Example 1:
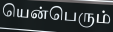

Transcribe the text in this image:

யென்பெரும்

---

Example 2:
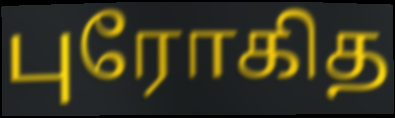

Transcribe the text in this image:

புரோகித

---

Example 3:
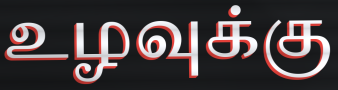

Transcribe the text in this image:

உழவுக்கு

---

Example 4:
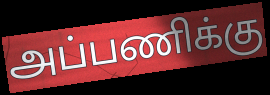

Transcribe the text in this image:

அப்பணிக்கு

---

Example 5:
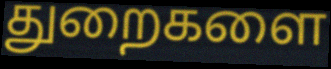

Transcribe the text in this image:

துறைகளை